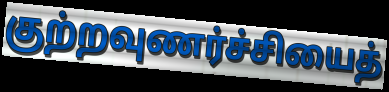
குற்றவுணர்ச்சியைத்